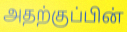
அதற்குப்பின்